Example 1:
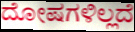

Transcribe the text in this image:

ದೋಷಗಳಿಲ್ಲದೆ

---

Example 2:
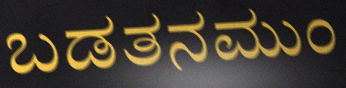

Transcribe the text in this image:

ಬಡತನಮುಂ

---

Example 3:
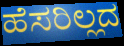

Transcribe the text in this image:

ಹೆಸರಿಲ್ಲದ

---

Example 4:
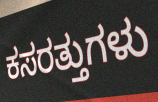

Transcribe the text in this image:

ಕಸರತ್ತುಗಳು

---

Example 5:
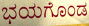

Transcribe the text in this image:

ಭಯಗೊಂಡ